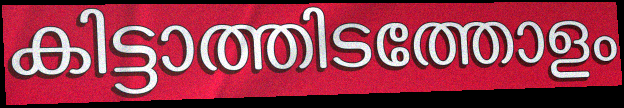
കിട്ടാത്തിടത്തോളം